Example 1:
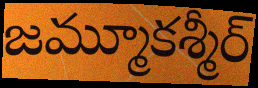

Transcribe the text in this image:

జమ్మూకశ్మీర్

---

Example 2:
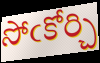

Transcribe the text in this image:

సోఁకోర్చి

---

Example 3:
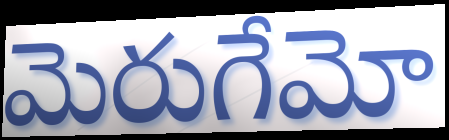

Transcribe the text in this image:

మెరుగేమో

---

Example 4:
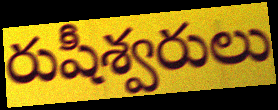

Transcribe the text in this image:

రుషీశ్వరులు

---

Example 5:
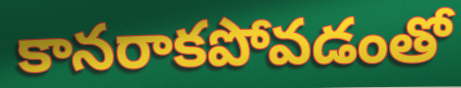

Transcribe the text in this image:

కానరాకపోవడంతో